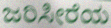
ಜರಿಸೀರೆಯ